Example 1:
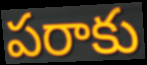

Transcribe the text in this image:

పరాకు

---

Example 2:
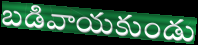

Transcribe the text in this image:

బడివాయకుండు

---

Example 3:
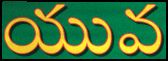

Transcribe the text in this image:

యువ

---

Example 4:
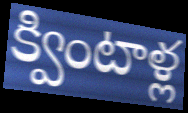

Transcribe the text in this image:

క్వింటాళ్ల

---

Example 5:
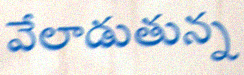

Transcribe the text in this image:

వేలాడుతున్న